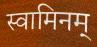
स्वामिनम्